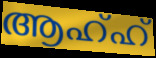
ആഹ്ഹ്